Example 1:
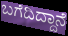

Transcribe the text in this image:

ಬಗೆದಿದ್ದಾನೆ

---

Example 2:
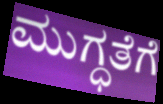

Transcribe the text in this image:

ಮುಗ್ಧತೆಗೆ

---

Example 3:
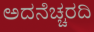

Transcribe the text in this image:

ಅದನೆಚ್ಚರದಿ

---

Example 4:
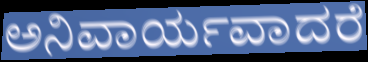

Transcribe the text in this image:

ಅನಿವಾರ್ಯವಾದರೆ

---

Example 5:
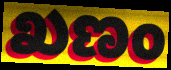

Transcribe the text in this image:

ಖಣಂ